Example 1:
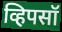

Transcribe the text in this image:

व्हिपसॉ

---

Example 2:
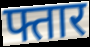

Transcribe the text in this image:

फ्तार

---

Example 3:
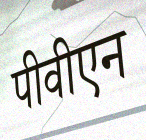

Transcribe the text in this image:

पीवीएन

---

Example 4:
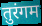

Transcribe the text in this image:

तुरंगम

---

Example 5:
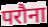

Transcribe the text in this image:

परौना